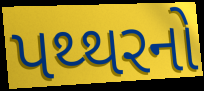
પથ્થરનો